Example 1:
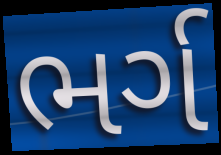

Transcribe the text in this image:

ભર્ગ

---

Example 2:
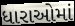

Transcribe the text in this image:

ધારાઓમાં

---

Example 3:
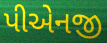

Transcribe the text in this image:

પીએનજી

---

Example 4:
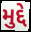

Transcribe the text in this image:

મુદ્દે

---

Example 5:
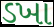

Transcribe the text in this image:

ડખા